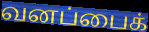
வனப்பைக்